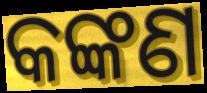
କଙ୍କଣ